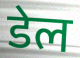
डेल